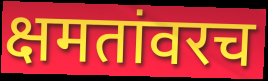
क्षमतांवरच